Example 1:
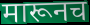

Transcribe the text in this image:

मारूनच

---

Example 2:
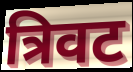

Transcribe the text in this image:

त्रिवट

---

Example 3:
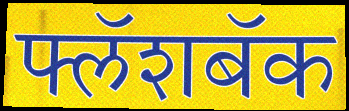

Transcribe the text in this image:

फ्लॅशबॅक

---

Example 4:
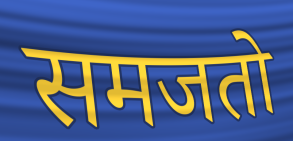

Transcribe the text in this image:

समजतो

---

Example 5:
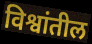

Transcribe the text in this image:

विश्वांतील